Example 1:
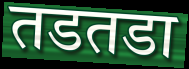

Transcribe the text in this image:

तडतडा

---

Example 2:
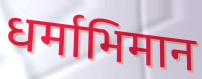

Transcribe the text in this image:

धर्माभिमान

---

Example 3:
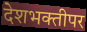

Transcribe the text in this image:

देशभक्तीपर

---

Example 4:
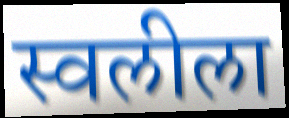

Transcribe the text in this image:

स्वलीला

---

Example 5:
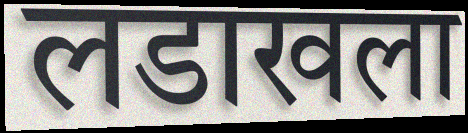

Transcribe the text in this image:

लडाखला